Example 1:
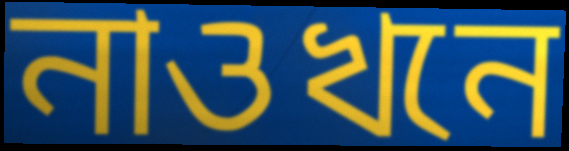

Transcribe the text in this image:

নাওখনে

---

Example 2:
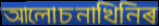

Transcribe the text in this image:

আলোচনাখিনিৰ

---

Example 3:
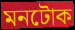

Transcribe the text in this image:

মনটোক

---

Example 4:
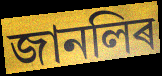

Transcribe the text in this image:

জানলিৰ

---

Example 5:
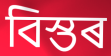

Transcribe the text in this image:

বিস্তৰ